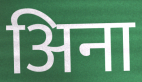
अिना